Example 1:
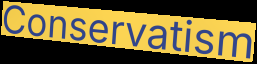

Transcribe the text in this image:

Conservatism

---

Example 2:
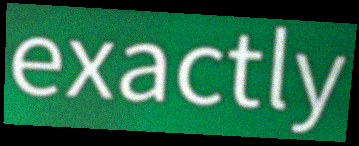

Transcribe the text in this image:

exactly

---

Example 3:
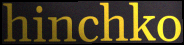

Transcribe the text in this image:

hinchko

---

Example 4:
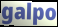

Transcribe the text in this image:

galpo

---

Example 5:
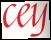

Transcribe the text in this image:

cey